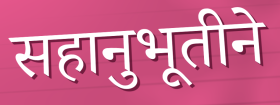
सहानुभूतीने